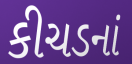
કીચડનાં